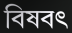
বিষবৎ